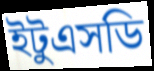
ইটুএসডি